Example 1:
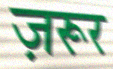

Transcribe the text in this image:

ज़रूर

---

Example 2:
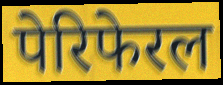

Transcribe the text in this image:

पेरिफेरल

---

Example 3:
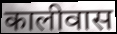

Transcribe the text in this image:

कालीवास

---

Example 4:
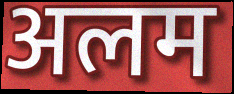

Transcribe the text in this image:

अलम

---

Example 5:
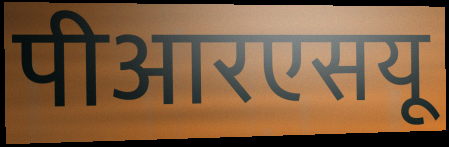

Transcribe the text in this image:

पीआरएसयू